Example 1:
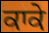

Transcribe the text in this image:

ਕਾਕੇ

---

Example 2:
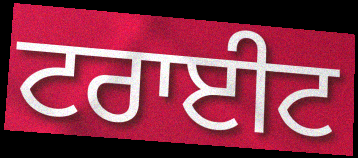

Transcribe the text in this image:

ਟਰਾਈਟ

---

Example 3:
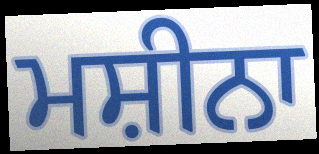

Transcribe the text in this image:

ਮਸ਼ੀਨਾ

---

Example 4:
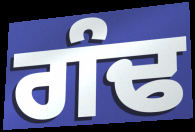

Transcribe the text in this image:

ਗੰਢ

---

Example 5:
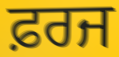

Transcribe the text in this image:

ਫ਼ਰਜ